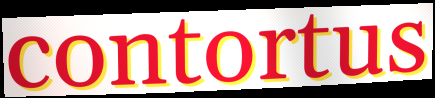
contortus